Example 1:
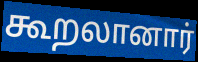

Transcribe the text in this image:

கூறலானார்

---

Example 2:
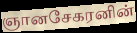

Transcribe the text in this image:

ஞானசேகரனின்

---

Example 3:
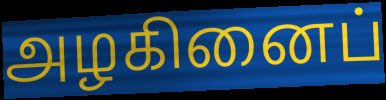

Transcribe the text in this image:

அழகினைப்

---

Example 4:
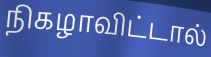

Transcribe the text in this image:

நிகழாவிட்டால்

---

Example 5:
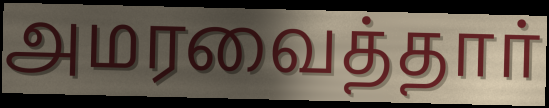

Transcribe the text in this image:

அமரவைத்தார்